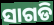
ସାଗଡି